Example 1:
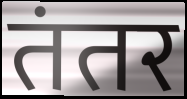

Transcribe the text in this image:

तंतर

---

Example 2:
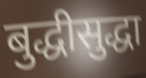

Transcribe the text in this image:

बुद्धीसुद्धा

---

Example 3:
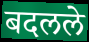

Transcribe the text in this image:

बदलले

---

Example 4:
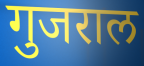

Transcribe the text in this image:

गुजराल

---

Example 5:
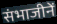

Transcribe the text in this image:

संभाजीनें